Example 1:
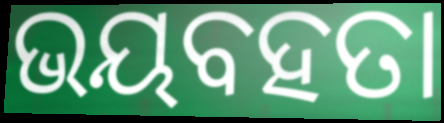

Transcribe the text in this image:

ଭୟବହତା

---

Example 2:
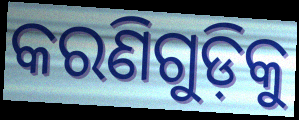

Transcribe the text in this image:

କରଣିଗୁଡ଼ିକୁ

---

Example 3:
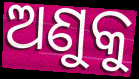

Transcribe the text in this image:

ଅଣୁକୁ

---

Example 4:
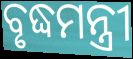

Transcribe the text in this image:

ବୃଦ୍ଧମନ୍ତ୍ରୀ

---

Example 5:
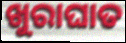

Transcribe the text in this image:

ଖୁରାଘାତ